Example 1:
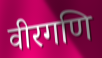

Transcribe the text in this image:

वीरगणि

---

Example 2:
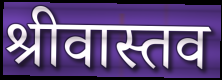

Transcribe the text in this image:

श्रीवास्तव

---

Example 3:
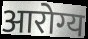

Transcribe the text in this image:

आरोग्य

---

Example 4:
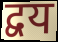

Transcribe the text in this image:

द्वय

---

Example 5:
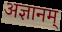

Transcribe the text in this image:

अज्ञानम्